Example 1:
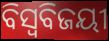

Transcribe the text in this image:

ବିସ୍ଵବିଜୟୀ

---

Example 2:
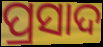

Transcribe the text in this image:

ପ୍ରସାଦ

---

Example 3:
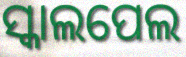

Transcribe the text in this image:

ସ୍କାଲପେଲ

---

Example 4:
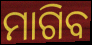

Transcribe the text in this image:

ମାଗିବ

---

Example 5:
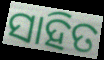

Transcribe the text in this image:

ସାହିତ